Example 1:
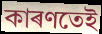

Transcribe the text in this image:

কাৰণতেই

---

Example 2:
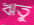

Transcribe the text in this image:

ঋতু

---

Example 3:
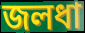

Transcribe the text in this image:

জলধা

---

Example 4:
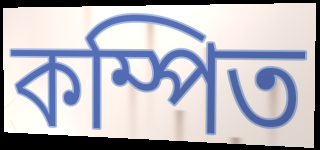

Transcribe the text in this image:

কম্পিত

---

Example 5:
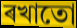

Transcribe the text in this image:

ৰখাতো